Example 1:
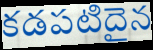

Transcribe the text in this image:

కడపటిదైన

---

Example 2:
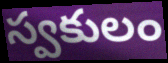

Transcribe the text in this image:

స్వకులం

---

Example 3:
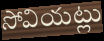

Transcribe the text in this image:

సోవియట్లు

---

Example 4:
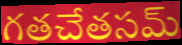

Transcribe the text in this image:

గతచేతసమ్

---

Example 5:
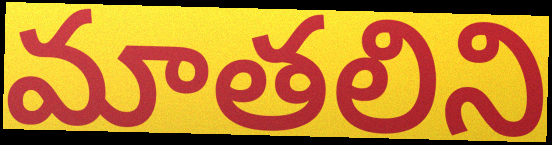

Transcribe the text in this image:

మాతలిని